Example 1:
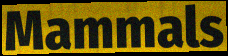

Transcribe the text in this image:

Mammals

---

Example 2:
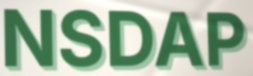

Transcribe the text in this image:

NSDAP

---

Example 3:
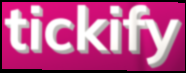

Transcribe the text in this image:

tickify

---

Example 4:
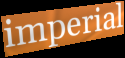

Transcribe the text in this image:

imperial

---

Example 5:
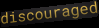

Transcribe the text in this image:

discouraged